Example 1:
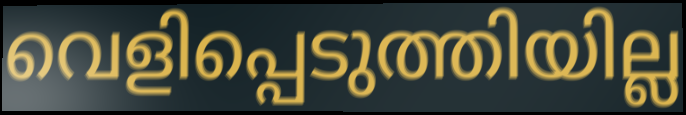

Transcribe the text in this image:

വെളിപ്പെടുത്തിയില്ല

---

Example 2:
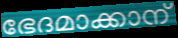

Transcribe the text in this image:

ഭേദമാക്കാന്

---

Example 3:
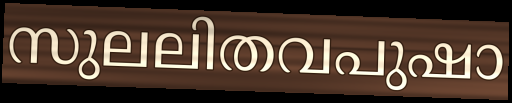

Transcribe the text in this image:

സുലലിതവപുഷാ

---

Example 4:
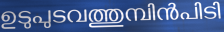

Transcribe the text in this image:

ഉടുപുടവത്തുമ്പിൻപിടി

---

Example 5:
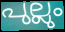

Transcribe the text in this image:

പുല്ലും